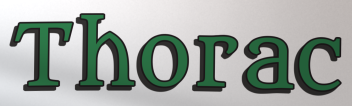
Thorac